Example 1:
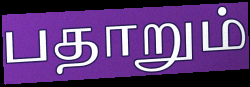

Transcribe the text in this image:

பதாறும்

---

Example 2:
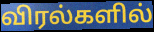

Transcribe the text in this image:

விரல்களில்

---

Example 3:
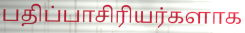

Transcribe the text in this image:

பதிப்பாசிரியர்களாக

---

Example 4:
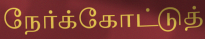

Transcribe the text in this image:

நேர்க்கோட்டுத்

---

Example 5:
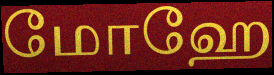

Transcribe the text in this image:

மோஹே